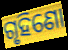
ଗୃହିଣୋ